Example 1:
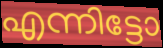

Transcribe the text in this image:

എന്നിട്ടോ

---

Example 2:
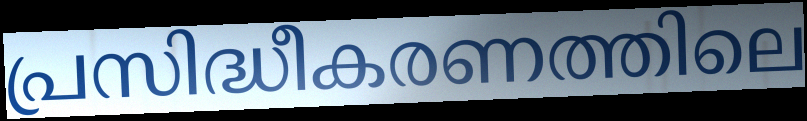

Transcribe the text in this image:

പ്രസിദ്ധീകരണത്തിലെ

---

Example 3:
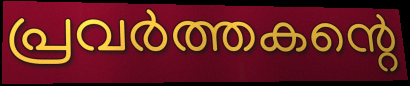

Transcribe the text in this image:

പ്രവർത്തകന്റെ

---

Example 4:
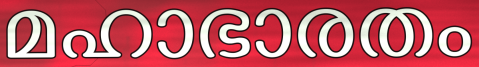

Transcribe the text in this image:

മഹാഭാരതം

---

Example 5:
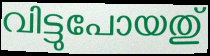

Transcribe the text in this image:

വിട്ടുപോയതു്